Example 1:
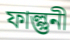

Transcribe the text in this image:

ফাল্গুনী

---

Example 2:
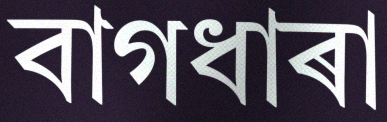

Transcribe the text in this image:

বাগধাৰা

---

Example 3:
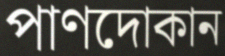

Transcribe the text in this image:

পাণদোকান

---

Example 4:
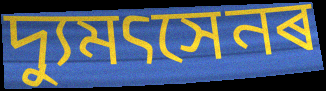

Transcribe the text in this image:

দ্যুমৎসেনৰ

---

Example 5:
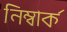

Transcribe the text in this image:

নিম্বাৰ্ক